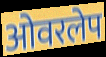
ओवरलेप